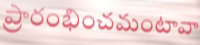
ప్రారంభించమంటావా